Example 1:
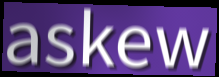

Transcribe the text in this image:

askew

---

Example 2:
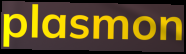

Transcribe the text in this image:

plasmon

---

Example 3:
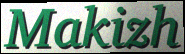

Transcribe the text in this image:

Makizh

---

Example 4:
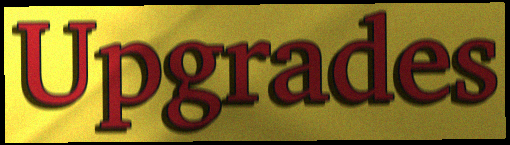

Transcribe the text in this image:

Upgrades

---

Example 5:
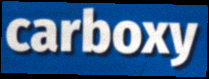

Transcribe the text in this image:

carboxy